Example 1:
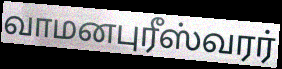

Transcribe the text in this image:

வாமனபுரீஸ்வரர்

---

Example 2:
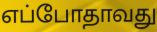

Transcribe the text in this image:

எப்போதாவது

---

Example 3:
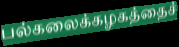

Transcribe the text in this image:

பல்கலைக்கழகத்தைச்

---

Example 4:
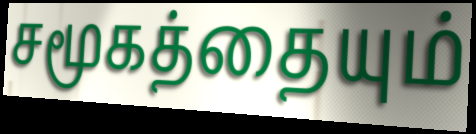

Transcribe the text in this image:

சமூகத்தையும்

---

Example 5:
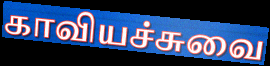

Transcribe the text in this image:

காவியச்சுவை